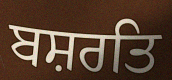
ਬਸ਼ਰਤਿ